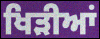
ਖਿੜੀਆਂ